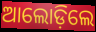
ଆଲୋଡ଼ିଲେ